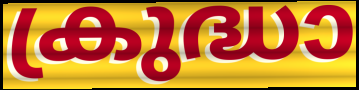
ക്രുദ്ധാ